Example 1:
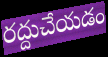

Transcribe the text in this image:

రద్దుచేయడం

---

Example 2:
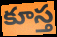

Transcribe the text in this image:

కూస్త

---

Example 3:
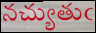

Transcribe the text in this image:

నచ్యుతుఁ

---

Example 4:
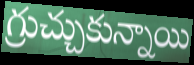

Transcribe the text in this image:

గ్రుచ్చుకున్నాయి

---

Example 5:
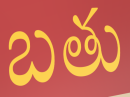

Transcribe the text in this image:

బతు